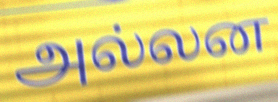
அல்லன